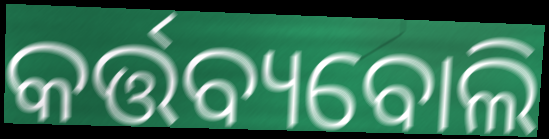
କର୍ତ୍ତବ୍ୟବୋଲି